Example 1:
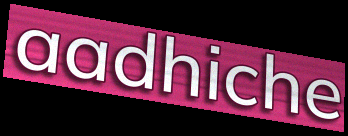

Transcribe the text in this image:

aadhiche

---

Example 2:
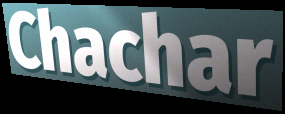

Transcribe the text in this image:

Chachar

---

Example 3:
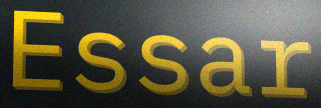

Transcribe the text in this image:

Essar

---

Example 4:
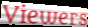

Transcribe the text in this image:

Viewers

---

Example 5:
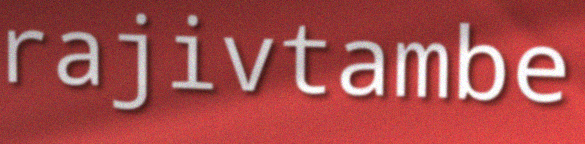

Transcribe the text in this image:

rajivtambe